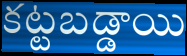
కట్టబడ్డాయి